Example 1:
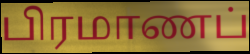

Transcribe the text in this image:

பிரமாணப்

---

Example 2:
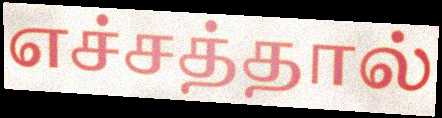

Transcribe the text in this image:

எச்சத்தால்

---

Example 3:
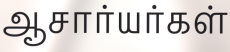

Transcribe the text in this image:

ஆசார்யர்கள்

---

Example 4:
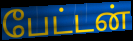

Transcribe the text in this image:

பேட்டன்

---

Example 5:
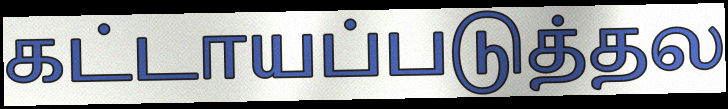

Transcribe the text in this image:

கட்டாயப்படுத்தல